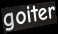
goiter